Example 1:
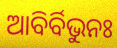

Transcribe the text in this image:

ଆବିର୍ବିଭୁନଃ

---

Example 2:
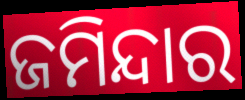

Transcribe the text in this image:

ଜମିନ୍ଦାର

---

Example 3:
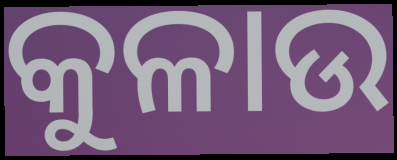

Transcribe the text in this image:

କୁଳାଉ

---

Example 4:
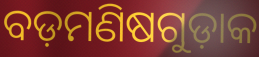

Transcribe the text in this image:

ବଡ଼ମଣିଷଗୁଡ଼ାକ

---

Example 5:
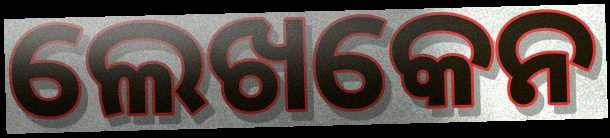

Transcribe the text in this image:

ଲେଖକେନ